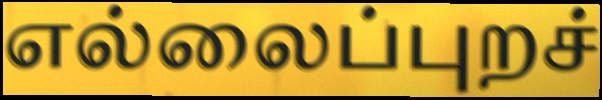
எல்லைப்புறச்